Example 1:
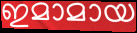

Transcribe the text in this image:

ഇമാമായ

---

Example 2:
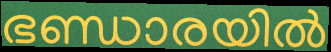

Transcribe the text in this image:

ഭണ്ഡാരയിൽ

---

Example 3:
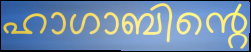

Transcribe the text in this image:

ഹാഗാബിന്റെ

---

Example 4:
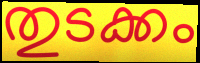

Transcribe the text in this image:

തുടക്കം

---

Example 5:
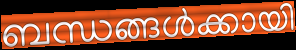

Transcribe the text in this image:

ബന്ധങ്ങൾക്കായി